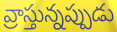
వ్రాస్తున్నప్పుడు